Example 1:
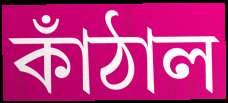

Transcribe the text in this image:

কাঁঠাল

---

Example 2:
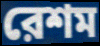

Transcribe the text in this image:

রেশম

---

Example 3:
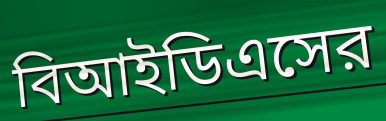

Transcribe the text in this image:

বিআইডিএসের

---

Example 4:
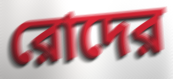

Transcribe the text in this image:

রোদের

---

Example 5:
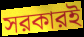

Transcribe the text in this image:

সরকারই